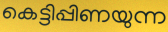
കെട്ടിപ്പിണയുന്ന